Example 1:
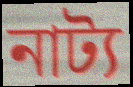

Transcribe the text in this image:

নাট্য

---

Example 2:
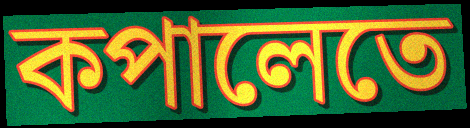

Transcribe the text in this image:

কপালেতে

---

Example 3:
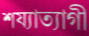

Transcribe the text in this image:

শয্যাত্যাগী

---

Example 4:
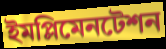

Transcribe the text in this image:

ইমপ্লিমেনটেশন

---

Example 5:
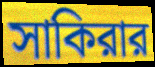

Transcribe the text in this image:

সাকিরার